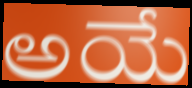
అయే